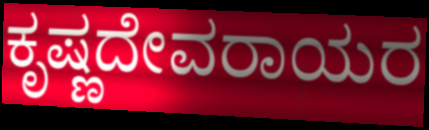
ಕೃಷ್ಣದೇವರಾಯರ